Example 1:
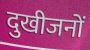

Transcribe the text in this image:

दुखीजनों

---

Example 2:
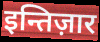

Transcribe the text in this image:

इन्तिज़ार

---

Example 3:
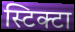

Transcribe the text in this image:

स्टिक्टा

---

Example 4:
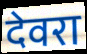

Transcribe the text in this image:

देवरा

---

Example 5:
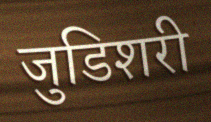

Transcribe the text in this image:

जुडिशरी